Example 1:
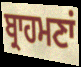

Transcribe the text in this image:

ਬ੍ਰਾਹਮਣਾਂ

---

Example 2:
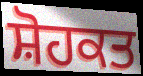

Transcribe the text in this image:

ਸ਼ੋਹਕਤ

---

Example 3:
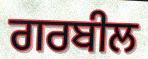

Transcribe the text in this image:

ਗਰਬੀਲ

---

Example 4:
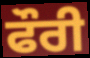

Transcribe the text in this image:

ਫੌਰੀ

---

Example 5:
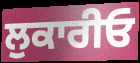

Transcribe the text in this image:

ਲੁਕਾਰੀਓ